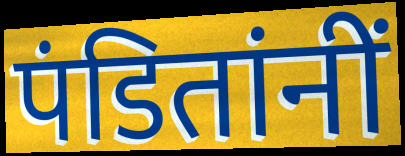
पंडितांनीं